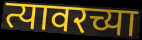
त्यावरच्या